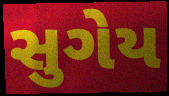
સુગેય